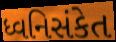
ધ્વનિસંકેત